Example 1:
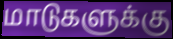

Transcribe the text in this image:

மாடுகளுக்கு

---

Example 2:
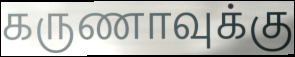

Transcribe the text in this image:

கருணாவுக்கு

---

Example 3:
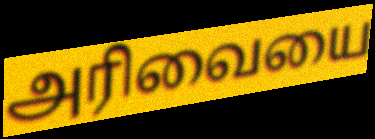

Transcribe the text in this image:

அரிவையை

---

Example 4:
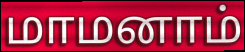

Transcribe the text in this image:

மாமனாம்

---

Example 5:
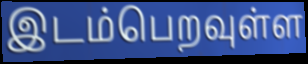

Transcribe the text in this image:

இடம்பெறவுள்ள